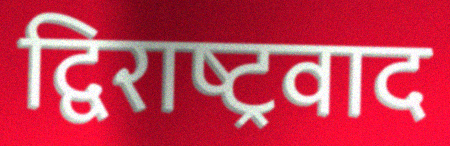
द्विराष्ट्रवाद